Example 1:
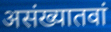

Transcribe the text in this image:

असंख्यातवां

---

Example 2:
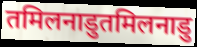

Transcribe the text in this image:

तमिलनाडुतमिलनाडु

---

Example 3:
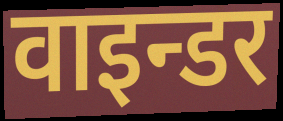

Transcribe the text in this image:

वाइन्डर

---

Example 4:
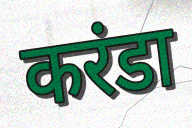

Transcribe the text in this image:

करंडा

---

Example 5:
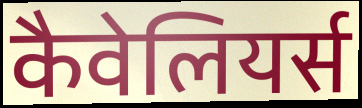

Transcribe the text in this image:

कैवेलियर्स